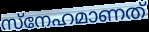
സ്നേഹമാണത്